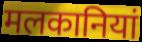
मलकानियां